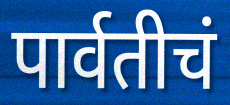
पार्वतीचं